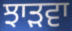
ਝਾੜਵਾ